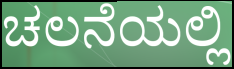
ಚಲನೆಯಲ್ಲಿ